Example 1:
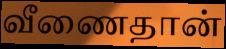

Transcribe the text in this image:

வீணைதான்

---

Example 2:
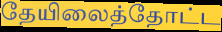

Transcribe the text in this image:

தேயிலைத்தோட்ட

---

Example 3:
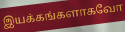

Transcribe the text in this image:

இயக்கங்களாகவோ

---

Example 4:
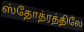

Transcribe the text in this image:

ஸ்தோத்ரத்திலே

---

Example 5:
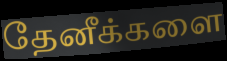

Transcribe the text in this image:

தேனீக்களை